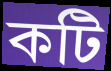
কটি